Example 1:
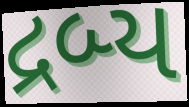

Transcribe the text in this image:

દ્રબ્ય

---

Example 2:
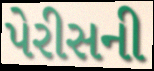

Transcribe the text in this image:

પેરીસની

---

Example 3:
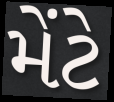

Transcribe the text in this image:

મેંટે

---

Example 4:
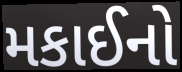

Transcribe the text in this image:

મકાઈનો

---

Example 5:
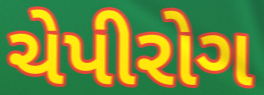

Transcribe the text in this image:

ચેપીરોગ